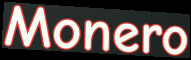
Monero